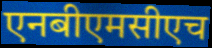
एनबीएमसीएच